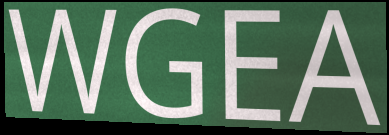
WGEA